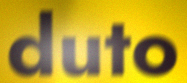
duto